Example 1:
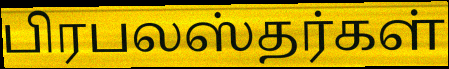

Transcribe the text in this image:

பிரபலஸ்தர்கள்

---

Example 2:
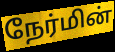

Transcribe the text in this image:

நேர்மின்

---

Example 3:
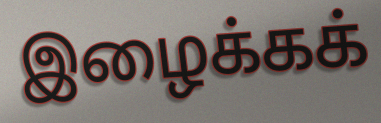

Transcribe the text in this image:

இழைக்கக்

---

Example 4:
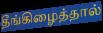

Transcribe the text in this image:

தீங்கிழைத்தால்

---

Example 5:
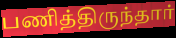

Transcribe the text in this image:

பணித்திருந்தார்